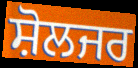
ਸ਼ੋਲਜਰ